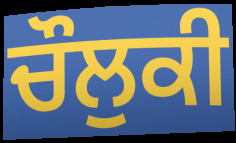
ਚੌਲੁਕੀ